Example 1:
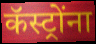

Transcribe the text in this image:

कॅस्ट्रोंना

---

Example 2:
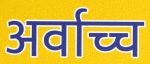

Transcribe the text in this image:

अर्वाच्च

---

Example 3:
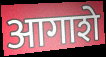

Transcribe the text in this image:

आगाशे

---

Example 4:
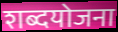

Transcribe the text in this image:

शब्दयोजना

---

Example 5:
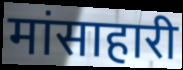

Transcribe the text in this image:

मांसाहारी